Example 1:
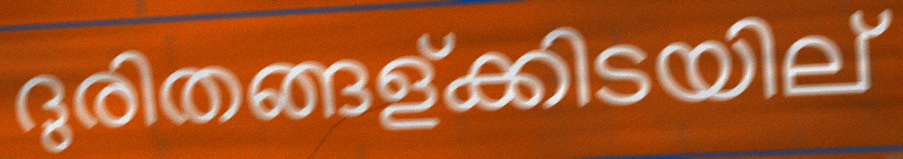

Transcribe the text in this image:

ദുരിതങ്ങള്ക്കിടയില്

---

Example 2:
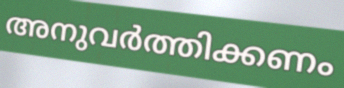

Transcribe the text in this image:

അനുവർത്തിക്കണം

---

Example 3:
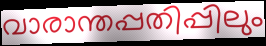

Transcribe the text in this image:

വാരാന്തപ്പതിപ്പിലും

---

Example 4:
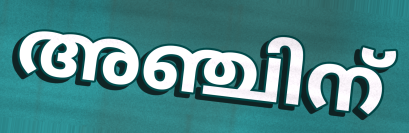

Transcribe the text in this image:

അഞ്ചിന്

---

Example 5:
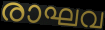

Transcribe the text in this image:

രാഘവ